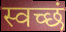
स्वच्छं